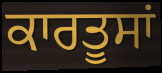
ਕਾਰਤੂਸਾਂ